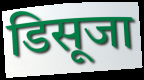
डिसूजा